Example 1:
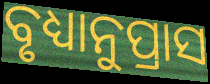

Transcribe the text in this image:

ବୃଧ୍ୟାନୁପ୍ରାସ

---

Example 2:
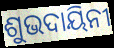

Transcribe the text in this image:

ଶୁଭଦାୟିନୀ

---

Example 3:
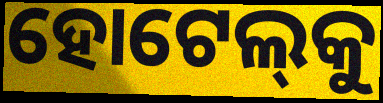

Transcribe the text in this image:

ହୋଟେଲ୍‌କୁ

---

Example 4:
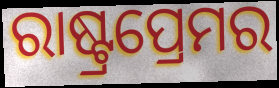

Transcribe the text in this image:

ରାଷ୍ଟ୍ରପ୍ରେମର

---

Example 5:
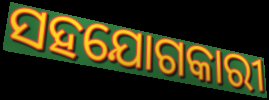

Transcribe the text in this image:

ସହଯୋଗକାରୀ